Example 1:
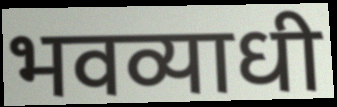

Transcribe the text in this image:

भवव्याधी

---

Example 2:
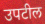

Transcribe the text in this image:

उपटील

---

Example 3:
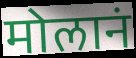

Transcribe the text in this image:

मोलानं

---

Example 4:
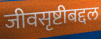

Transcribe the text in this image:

जीवसृष्टीबद्दल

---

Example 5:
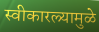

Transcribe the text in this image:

स्वीकारल्यामुळे